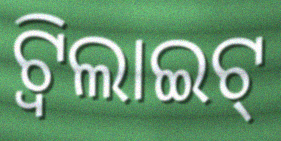
ଟ୍ୱିଲାଇଟ୍